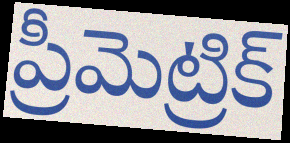
ప్రీమెట్రిక్